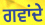
ਗਵਾਂਦੇ